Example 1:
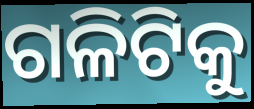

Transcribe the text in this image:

ଗଳିଟିକୁ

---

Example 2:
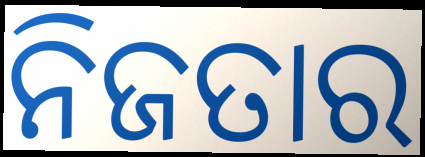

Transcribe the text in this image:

ନିଜତାର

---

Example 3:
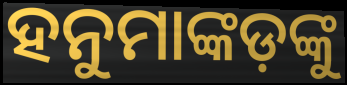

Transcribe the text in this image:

ହନୁମାଙ୍କଡ଼ଙ୍କୁ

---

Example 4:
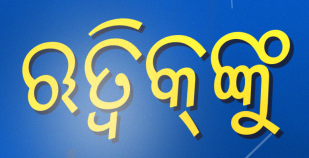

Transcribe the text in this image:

ଋତ୍ୱିକ୍‌ଙ୍କୁ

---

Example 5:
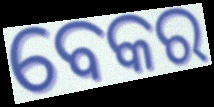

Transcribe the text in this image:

ବେକର